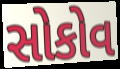
સોકોવ